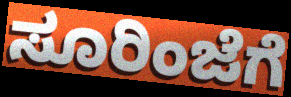
ಸೂರಿಂಜೆಗೆ